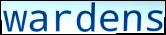
wardens